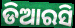
ଡିଆରସି